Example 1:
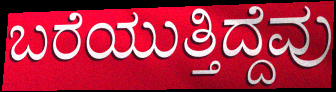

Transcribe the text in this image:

ಬರೆಯುತ್ತಿದ್ದೆವು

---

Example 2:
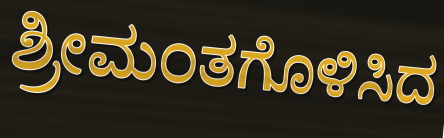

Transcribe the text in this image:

ಶ್ರೀಮಂತಗೊಳಿಸಿದ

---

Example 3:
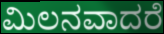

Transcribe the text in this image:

ಮಿಲನವಾದರೆ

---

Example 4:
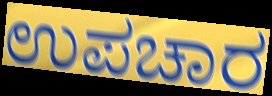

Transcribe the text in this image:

ಉಪಚಾರ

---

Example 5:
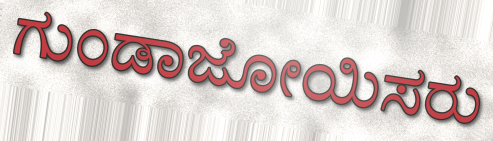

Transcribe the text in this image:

ಗುಂಡಾಜೋಯಿಸರು